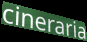
cineraria